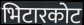
भिटारकोट